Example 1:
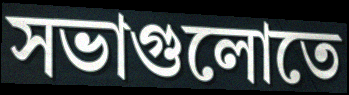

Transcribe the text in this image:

সভাগুলোতে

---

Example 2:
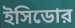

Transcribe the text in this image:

ইসিডোর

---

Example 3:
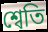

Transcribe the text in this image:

শ্বেতি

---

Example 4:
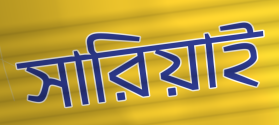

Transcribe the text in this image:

সারিয়াই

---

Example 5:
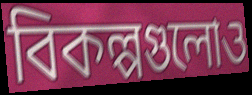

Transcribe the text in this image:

বিকল্পগুলোও